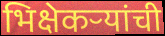
भिक्षेकऱ्यांची